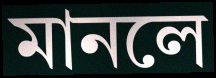
মানলে